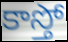
కాస్తో